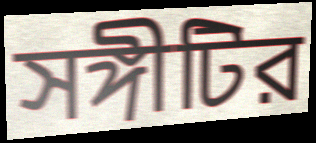
সঙ্গীটির